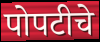
पोपटीचे